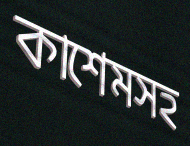
কাশেমসহ